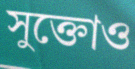
সুক্তোও